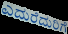
ಎದುರೆದುರಿಗೆ